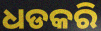
ଧଡକରି